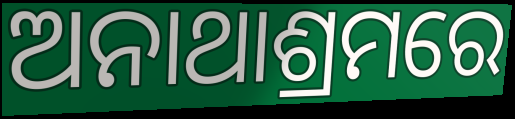
ଅନାଥାଶ୍ରମରେ